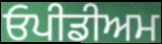
ਓਪੀਡੀਅਮ